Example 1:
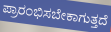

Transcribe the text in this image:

ಪ್ರಾರಂಭಿಸಬೇಕಾಗುತ್ತದೆ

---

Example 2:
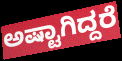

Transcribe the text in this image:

ಅಷ್ಟಾಗಿದ್ದರೆ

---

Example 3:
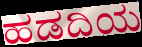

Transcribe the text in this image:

ಹಡದಿಯ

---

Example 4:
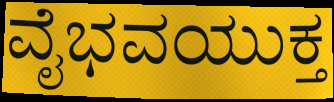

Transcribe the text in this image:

ವೈಭವಯುಕ್ತ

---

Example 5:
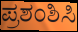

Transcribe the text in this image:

ಪ್ರಶಂಶಿಸಿ